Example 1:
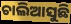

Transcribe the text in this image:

ଚାଲିଆସୁଛି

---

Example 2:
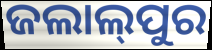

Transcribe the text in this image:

ଜଲାଲ୍‍ପୁର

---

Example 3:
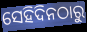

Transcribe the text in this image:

ସେହିଦିନଠାରୁ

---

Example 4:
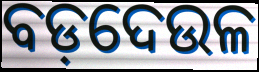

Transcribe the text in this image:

ବଡ଼ଦେଉଳ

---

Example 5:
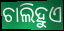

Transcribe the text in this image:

ଚାଲିହୁଏ